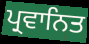
ਪ੍ਰਵਾਨਿਤ